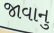
જાવાનુ